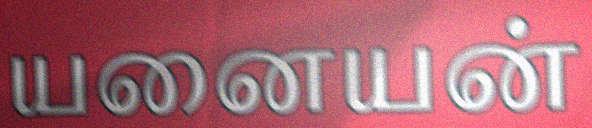
யனையன்